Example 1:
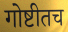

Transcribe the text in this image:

गोष्टीतच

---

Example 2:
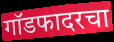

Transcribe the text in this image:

गॉडफादरचा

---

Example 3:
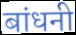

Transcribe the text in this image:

बांधनी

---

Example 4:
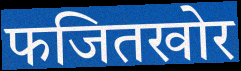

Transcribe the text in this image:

फजितखोर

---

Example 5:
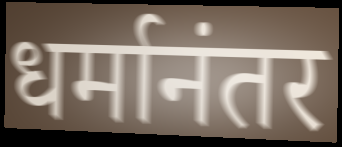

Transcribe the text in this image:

धर्मानंतर